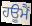
ਹਊਮੈਂ